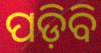
ପଡ଼ିବି